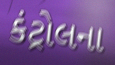
કંટ્રોલના